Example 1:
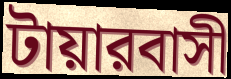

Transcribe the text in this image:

টায়ারবাসী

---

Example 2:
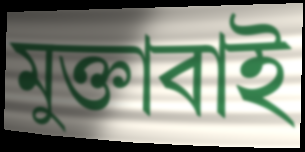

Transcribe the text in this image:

মুক্তাবাই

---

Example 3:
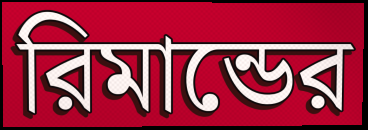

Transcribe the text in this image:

রিমান্ডের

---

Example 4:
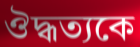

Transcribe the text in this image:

ঔদ্ধত্যকে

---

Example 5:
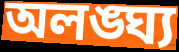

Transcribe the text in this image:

অলঙ্ঘ্য